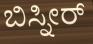
ಬಿಸ್ನೀರ್